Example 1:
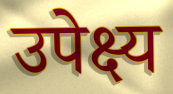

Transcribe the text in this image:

उपेक्ष्य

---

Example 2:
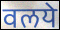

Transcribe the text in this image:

वलये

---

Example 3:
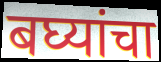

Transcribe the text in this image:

बघ्यांचा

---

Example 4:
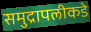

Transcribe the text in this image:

समुद्रापलीकडे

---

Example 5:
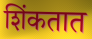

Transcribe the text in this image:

शिंकतात